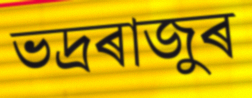
ভদ্ৰৰাজুৰ